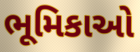
ભૂમિકાઓ